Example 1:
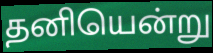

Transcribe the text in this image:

தனியென்று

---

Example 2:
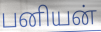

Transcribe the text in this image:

பனியன்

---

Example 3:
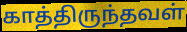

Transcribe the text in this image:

காத்திருந்தவள்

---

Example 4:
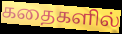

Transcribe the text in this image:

கதைகளில்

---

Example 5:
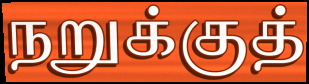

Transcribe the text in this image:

நறுக்குத்